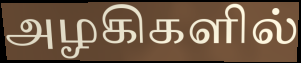
அழகிகளில்